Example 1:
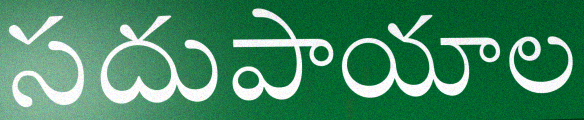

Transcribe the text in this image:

సదుపాయాల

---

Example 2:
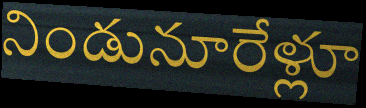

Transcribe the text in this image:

నిండునూరేళ్లూ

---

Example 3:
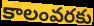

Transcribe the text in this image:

కాలంవరకు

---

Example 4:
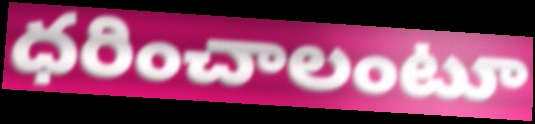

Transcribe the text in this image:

ధరించాలంటూ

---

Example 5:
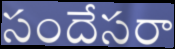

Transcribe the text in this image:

సందేసరా